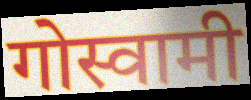
गोस्वामी